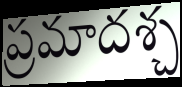
ప్రమాదశ్చ